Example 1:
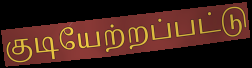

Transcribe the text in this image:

குடியேற்றப்பட்டு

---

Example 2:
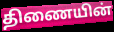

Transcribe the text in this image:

திணையின்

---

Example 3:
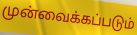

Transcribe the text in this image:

முன்வைக்கப்படும்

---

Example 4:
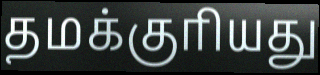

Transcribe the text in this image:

தமக்குரியது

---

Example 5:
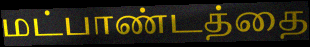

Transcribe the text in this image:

மட்பாண்டத்தை